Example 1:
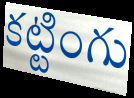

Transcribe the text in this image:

కట్టింగు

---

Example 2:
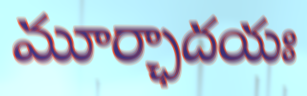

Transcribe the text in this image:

మూర్ఛాదయః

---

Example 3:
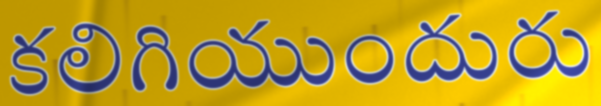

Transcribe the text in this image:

కలిగియుందురు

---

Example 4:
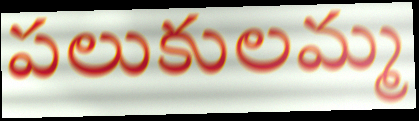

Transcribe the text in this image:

పలుకులమ్మ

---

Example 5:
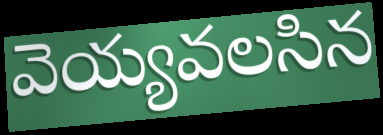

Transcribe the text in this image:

వెయ్యవలసిన